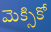
మెక్సికో